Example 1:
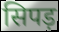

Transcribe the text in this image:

सिपड़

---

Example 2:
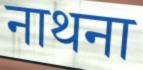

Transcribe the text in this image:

नाथना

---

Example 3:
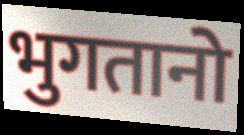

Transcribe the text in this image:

भुगतानो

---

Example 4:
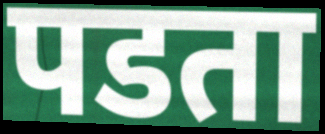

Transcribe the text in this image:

पडता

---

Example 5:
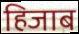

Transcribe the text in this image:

हिजाब